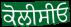
ਕੋਲੀਸੀਓ